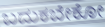
ಬದುಕಬೇಕೋ